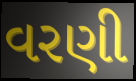
વરણી